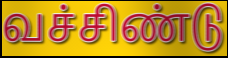
வச்சிண்டு